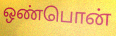
ஒண்பொன்